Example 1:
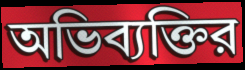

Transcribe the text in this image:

অভিব্যক্তির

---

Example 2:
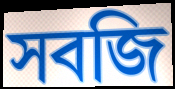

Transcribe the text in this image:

সবজি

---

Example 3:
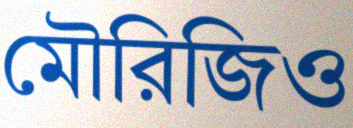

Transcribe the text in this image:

মৌরিজিও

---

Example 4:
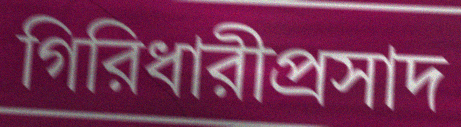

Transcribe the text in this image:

গিরিধারীপ্রসাদ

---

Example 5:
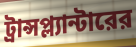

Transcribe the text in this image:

ট্রান্সপ্ল্যান্টারের